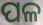
ପଳ